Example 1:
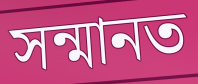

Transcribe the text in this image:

সন্মানত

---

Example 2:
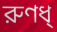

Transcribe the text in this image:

ৰুণধ্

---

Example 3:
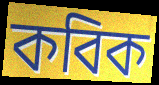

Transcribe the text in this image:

কবিক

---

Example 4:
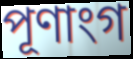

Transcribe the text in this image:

পূণাংগ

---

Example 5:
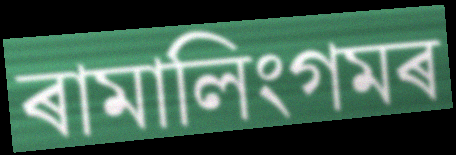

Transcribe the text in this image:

ৰামালিংগমৰ